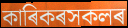
কাৰিকৰসকলৰ